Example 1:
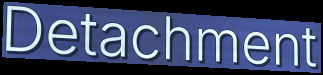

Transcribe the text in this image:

Detachment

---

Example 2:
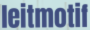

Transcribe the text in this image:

leitmotif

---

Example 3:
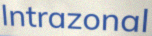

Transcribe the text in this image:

Intrazonal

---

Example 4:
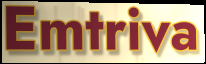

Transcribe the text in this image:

Emtriva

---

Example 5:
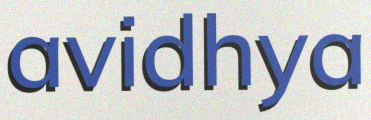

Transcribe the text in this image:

avidhya